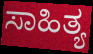
ಸಾಹಿತ್ಯ